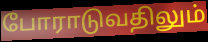
போராடுவதிலும்